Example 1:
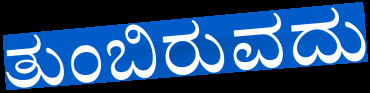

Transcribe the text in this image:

ತುಂಬಿರುವದು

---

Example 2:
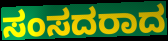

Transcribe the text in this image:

ಸಂಸದರಾದ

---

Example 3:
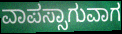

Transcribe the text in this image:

ವಾಪಸ್ಸಾಗುವಾಗ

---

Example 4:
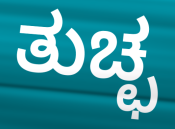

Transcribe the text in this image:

ತುಚ್ಛ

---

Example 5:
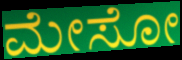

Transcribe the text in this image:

ಮೇಸೋ